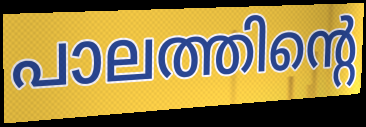
പാലത്തിന്റെ